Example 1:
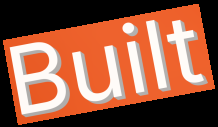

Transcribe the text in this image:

Built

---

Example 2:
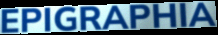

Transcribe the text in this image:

EPIGRAPHIA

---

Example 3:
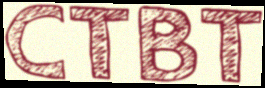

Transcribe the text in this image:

CTBT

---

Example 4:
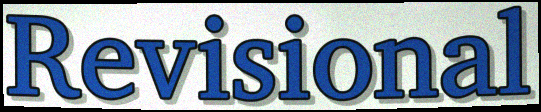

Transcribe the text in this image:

Revisional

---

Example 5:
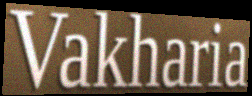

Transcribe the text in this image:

Vakharia